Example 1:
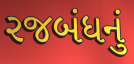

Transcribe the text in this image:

રજબંધનું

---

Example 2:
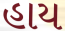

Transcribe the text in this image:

હાય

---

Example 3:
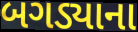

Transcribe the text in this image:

બગડ્યાના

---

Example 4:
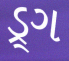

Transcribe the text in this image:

ડ્ર્ગ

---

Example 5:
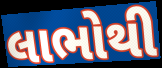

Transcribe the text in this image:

લાભોથી